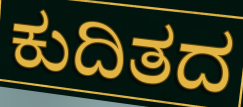
ಕುದಿತದ